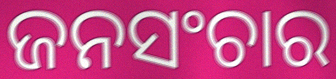
ଜନସଂଚାର